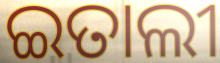
ଇତାଲୀ